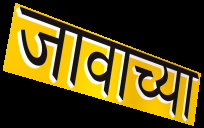
जावाच्या